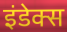
इंडेक्स